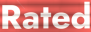
Rated